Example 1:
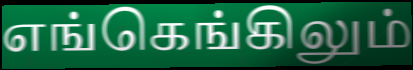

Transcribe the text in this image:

எங்கெங்கிலும்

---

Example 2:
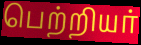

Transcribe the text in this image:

பெற்றியர்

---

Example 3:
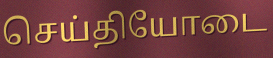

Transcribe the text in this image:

செய்தியோடை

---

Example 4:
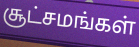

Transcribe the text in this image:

சூட்சமங்கள்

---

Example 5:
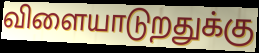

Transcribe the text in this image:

விளையாடுறதுக்கு